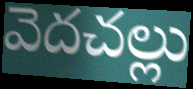
వెదచల్లు